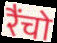
रैंचो